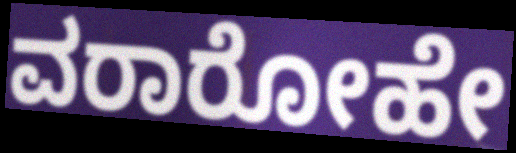
ವರಾರೋಹೇ